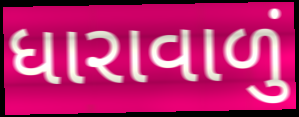
ધારાવાળું